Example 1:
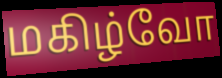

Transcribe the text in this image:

மகிழ்வோ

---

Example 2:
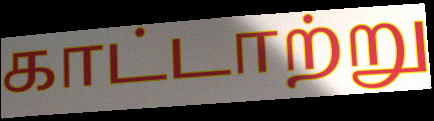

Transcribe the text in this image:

காட்டாற்று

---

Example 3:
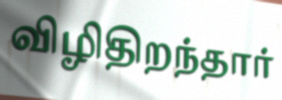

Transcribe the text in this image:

விழிதிறந்தார்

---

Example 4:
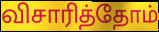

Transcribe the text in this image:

விசாரித்தோம்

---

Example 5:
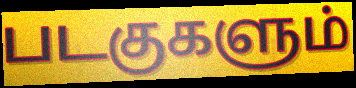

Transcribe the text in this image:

படகுகளும்